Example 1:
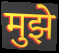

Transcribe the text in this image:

मुझे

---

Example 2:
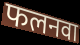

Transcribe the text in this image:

फलनवा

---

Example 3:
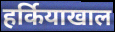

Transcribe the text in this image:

हर्कियाखाल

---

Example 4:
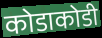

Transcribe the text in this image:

कोडाकोडी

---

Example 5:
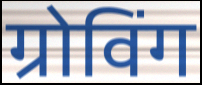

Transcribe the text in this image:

ग्रोविंग